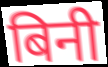
बिनी